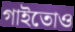
গাইতোও